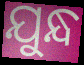
ଯୁନ୍ଧ